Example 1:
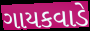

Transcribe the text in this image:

ગાયકવાડે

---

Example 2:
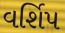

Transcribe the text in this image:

વર્શિપ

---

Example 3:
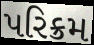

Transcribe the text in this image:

પરિક્રમ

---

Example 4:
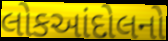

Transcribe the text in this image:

લોકઆંદોલનો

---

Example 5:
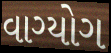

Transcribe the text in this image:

વાગ્યોગ